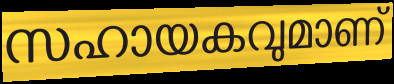
സഹായകവുമാണ്